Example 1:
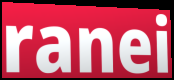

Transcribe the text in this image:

ranei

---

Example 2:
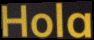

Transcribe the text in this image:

Hola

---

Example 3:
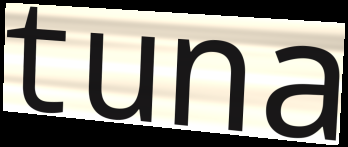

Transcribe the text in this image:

tuna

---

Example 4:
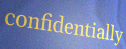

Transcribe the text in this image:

confidentially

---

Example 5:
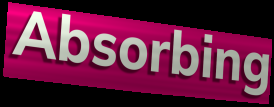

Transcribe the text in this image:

Absorbing